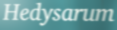
Hedysarum